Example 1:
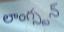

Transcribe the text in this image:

లాంగ్స్టన్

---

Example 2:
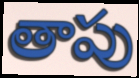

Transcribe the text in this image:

తాపు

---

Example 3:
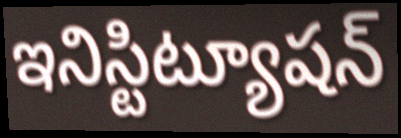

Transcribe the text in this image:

ఇనిస్టిట్యూషన్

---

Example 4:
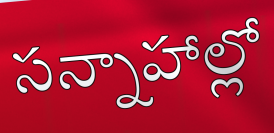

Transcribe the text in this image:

సన్నాహాల్లో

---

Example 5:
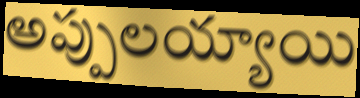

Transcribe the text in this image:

అప్పులయ్యాయి